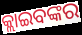
କ୍ଲାଇବଙ୍କର